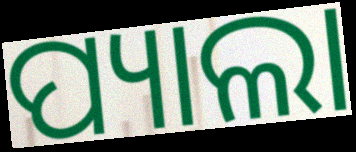
ପ୍ୟାଲା